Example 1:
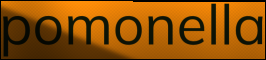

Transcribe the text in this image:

pomonella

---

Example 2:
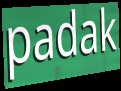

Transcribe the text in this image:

padak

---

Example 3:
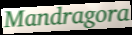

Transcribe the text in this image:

Mandragora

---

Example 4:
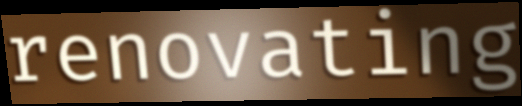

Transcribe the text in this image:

renovating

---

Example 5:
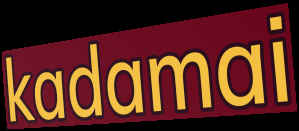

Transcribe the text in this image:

kadamai